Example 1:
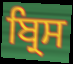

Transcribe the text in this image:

ਬ੍ਰਿਸ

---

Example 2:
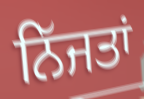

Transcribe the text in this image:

ਨਿੱਜਤਾਂ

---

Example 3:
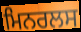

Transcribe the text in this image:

ਮਿਨਰਲਸ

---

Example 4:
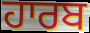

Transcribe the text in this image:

ਹਾਰਬ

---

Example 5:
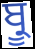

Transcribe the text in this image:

ਬ੍ਰੂ